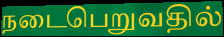
நடைபெறுவதில்